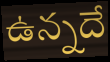
ఉన్నదే